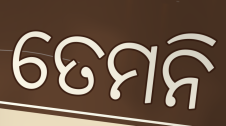
ତେମନି